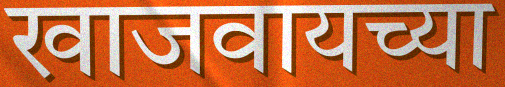
खाजवायच्या